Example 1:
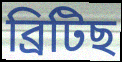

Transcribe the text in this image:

ব্ৰিটিছ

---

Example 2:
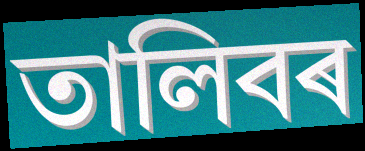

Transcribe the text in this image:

তালিবৰ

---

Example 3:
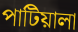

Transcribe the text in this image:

পাটিয়ালা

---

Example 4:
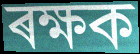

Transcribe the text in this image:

ৰক্ষক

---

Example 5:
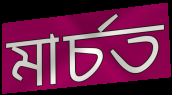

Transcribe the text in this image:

মাৰ্চত